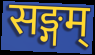
सङ्गम्